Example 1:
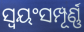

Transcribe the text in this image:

ସ୍ବୟଂସମ୍ପୂର୍ଣ୍ଣ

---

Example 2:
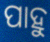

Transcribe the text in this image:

ପାହୁ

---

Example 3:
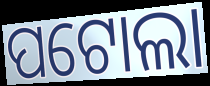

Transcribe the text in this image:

ପଟୋଲା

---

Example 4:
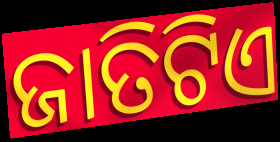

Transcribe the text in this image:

ଜାତିଟିଏ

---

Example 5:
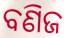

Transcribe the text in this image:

ବଣିଜ